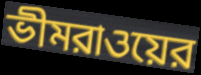
ভীমরাওয়ের